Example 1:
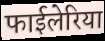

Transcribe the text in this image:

फाईलेरिया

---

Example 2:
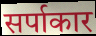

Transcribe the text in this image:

सर्पाकार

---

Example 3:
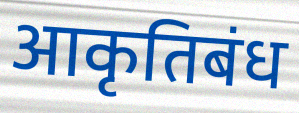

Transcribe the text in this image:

आकृतिबंध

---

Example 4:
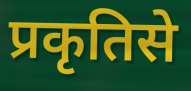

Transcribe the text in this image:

प्रकृतिसे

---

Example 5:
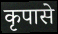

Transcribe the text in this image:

कृपासे